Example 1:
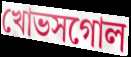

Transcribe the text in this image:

খোভসগোল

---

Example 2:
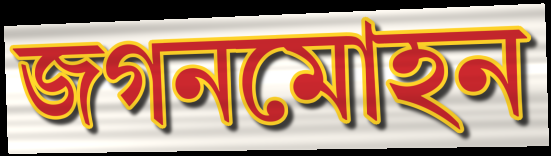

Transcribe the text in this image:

জগনমোহন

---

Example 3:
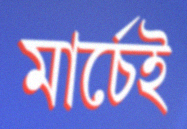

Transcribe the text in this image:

মার্চেই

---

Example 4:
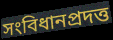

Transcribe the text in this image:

সংবিধানপ্রদত্ত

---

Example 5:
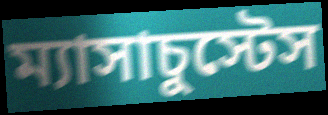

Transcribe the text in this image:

ম্যাসাচুস্টেস